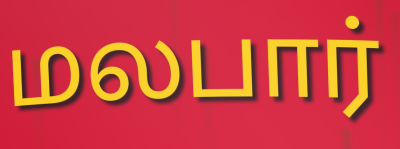
மலபார்